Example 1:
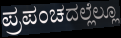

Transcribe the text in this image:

ಪ್ರಪಂಚದಲ್ಲೆಲ್ಲೂ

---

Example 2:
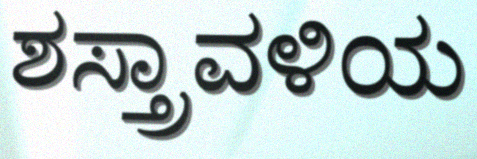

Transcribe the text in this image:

ಶಸ್ತ್ರಾವಳಿಯ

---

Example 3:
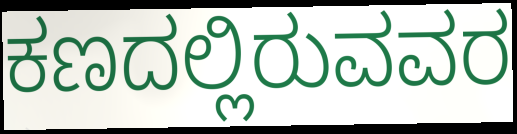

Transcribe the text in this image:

ಕಣದಲ್ಲಿರುವವರ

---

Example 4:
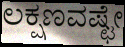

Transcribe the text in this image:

ಲಕ್ಷಣವಷ್ಟೇ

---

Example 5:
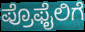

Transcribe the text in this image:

ಪ್ರೊಫೈಲಿಗೆ